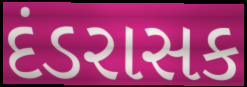
દંડરાસક